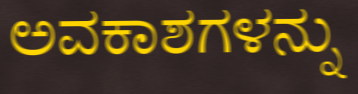
ಅವಕಾಶಗಳನ್ನು